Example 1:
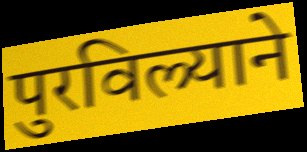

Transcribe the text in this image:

पुरविल्याने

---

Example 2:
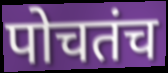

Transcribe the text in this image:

पोचतंच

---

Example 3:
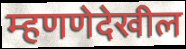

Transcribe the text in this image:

म्हणणेदेखील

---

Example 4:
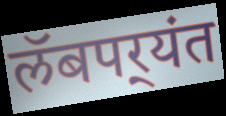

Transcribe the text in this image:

लॅबपर्यंत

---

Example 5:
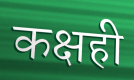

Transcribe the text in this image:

कक्षही